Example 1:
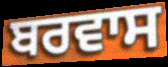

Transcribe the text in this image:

ਬਰਵਾਸ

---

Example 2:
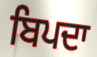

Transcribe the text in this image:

ਬਿਪਦਾ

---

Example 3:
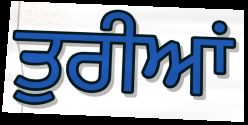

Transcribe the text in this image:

ਤੁਰੀਆਂ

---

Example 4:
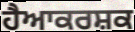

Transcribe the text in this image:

ਹੈਆਕਰਸ਼ਕ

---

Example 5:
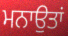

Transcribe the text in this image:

ਮਨਾਉਤਾਂ